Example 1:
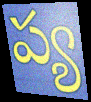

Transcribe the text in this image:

ప్య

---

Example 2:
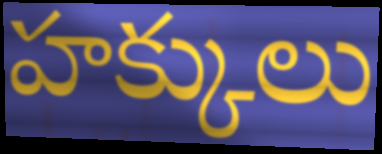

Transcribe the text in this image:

హక్కులు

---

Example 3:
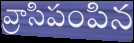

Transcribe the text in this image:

వ్రాసిపంపిన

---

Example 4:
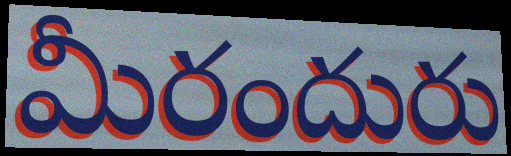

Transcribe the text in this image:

మీరందురు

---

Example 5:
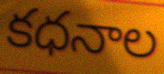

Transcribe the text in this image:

కధనాల